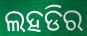
ଲହଡିର